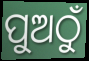
ପୁଅଠୁଁ